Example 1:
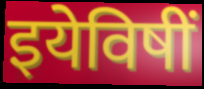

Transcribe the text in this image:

इयेविषीं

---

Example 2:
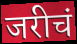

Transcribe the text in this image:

जरीचं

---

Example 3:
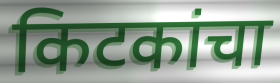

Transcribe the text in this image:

किटकांचा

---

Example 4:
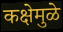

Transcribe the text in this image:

कक्षेमुळे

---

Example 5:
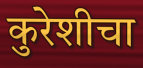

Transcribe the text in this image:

कुरेशीचा